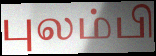
புலம்பி